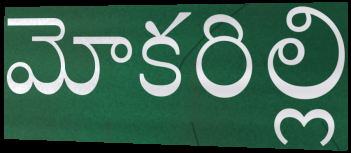
మోకరిల్లి